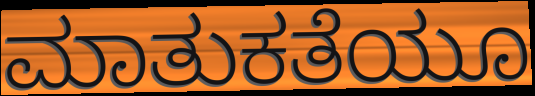
ಮಾತುಕತೆಯೂ